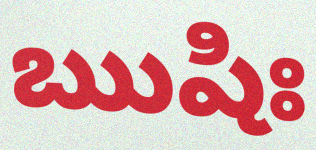
ఋషిః